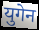
युगेन